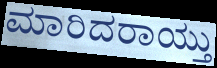
ಮಾರಿದರಾಯ್ತು